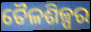
ତୈଳଶିଳ୍ପର